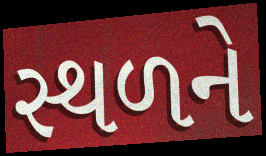
સ્થળને